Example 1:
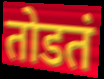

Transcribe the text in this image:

तोडतं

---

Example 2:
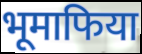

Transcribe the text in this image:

भूमाफिया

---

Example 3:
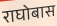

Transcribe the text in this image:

राघोबास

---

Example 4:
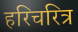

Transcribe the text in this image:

हरिचरित्र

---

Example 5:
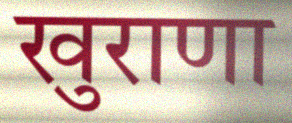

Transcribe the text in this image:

खुराणा